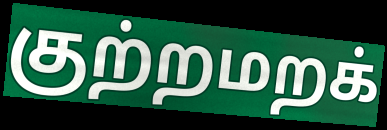
குற்றமறக்